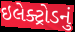
ઇલેક્ટ્રોડનું